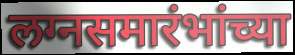
लग्नसमारंभांच्या